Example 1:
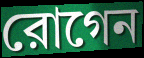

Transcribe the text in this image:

রোগেন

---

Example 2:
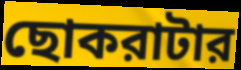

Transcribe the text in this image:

ছোকরাটার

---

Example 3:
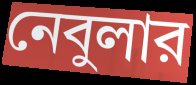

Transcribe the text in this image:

নেবুলার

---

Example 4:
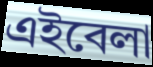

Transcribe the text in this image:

এইবেলা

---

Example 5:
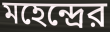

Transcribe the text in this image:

মহেন্দ্রের